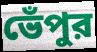
ভেঁপুর